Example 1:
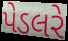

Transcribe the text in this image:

પેડલરે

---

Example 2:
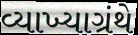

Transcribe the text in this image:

વ્યાખ્યાગ્રંથે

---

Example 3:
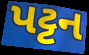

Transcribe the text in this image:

પટ્ટન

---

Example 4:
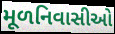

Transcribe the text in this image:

મૂળનિવાસીઓ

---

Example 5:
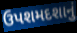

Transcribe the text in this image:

ઉપશમદશાનું